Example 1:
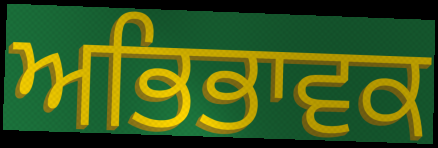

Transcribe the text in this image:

ਅਭਿਭਾਵਕ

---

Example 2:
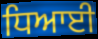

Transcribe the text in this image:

ਧਿਆਈ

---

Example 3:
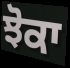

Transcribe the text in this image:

ਝੋਕਾ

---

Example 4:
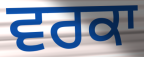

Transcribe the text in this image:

ਵਰਕਾ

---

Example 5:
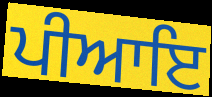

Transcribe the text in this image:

ਪੀਆਇ